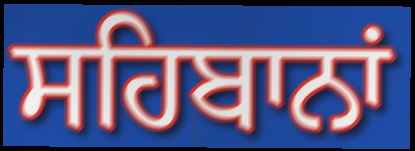
ਸਹਿਬਾਨਾਂ